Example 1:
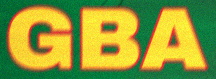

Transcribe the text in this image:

GBA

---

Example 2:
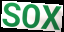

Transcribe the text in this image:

SOX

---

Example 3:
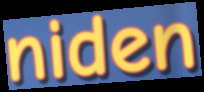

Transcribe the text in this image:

niden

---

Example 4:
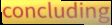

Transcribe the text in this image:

concluding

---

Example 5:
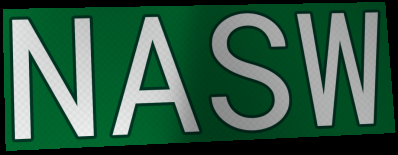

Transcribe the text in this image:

NASW